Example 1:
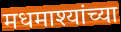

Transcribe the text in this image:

मधमाश्‍यांच्या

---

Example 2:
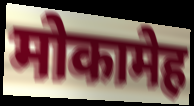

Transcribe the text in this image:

मोकामेह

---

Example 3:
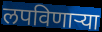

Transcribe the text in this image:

लपविणाऱ्या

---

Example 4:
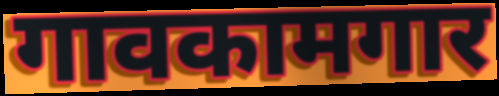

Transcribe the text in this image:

गावकामगार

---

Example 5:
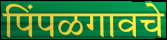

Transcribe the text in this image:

पिंपळगावचे